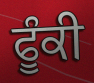
ਫੂੰਕੀ